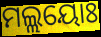
ମଲ୍ଲୟୋଃ